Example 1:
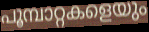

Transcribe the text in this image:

പൂമ്പാറ്റകളെയും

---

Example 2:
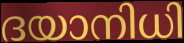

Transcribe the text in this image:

ദയാനിധി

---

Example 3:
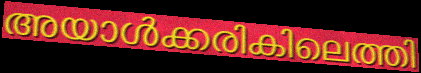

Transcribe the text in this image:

അയാൾക്കരികിലെത്തി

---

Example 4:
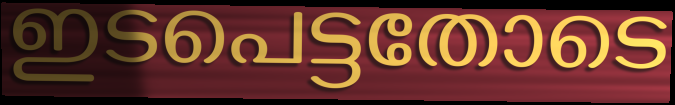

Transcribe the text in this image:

ഇടപെട്ടതോടെ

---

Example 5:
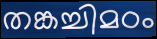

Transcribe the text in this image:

തങ്കച്ചിമഠം